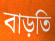
বাড়তি